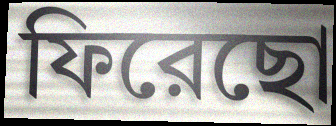
ফিরেছো